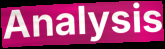
Analysis